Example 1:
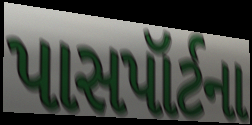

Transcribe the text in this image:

પાસપૉર્ટના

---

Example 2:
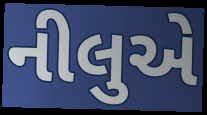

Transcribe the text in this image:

નીલુએ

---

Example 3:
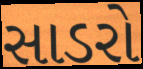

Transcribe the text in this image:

સાડરો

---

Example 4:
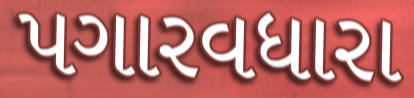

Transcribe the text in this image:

પગારવધારા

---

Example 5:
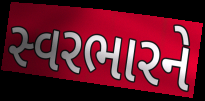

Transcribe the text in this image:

સ્વરભારને